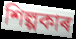
শিল্পকাৰ